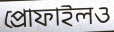
প্রোফাইলও